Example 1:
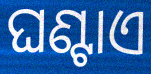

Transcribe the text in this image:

ଘଣ୍ଟାଏ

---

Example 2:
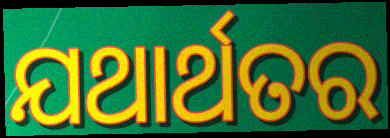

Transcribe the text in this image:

ଯଥାର୍ଥତର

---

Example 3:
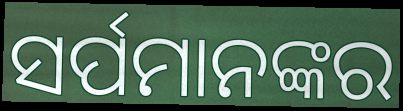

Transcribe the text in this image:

ସର୍ପମାନଙ୍କର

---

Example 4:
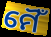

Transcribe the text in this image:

ମୈଁ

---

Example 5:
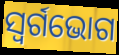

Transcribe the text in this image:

ସ୍ୱର୍ଗଭୋଗ